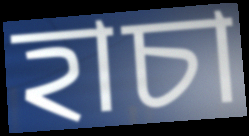
হাচা